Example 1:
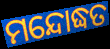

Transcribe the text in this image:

ମନ୍ଦୋଦ୍ଧତ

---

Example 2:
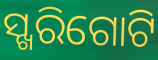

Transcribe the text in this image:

ସ୍ଖରିଗୋଟି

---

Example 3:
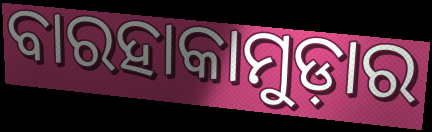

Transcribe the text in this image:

ବାରହାକାମୁଡ଼ାର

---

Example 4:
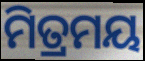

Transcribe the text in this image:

ମିତ୍ରମୟ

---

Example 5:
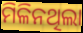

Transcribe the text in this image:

ମିଳିନଥିଲା